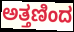
ಅತ್ತಣಿಂದ